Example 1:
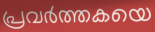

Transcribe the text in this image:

പ്രവർത്തകയെ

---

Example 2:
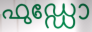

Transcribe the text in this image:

ഫുഡ്ഡോ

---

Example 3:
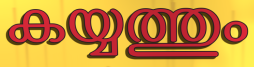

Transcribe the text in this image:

കയ്യത്തും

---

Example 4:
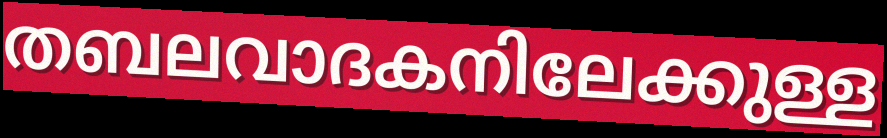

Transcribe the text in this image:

തബലവാദകനിലേക്കുള്ള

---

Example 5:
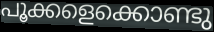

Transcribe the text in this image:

പൂക്കളെക്കൊണ്ടു